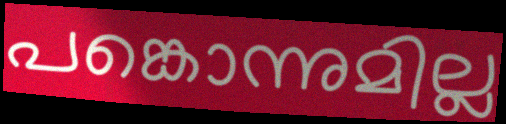
പങ്കൊന്നുമില്ല